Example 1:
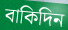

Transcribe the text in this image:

বাকিদিন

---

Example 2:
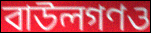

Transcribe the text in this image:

বাউলগণও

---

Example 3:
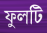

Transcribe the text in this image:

ফুলটি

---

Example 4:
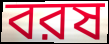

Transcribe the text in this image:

বরষ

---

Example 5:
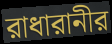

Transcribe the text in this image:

রাধারানীর